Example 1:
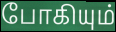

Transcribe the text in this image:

போகியும்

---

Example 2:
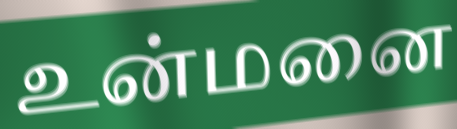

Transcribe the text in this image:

உன்மனை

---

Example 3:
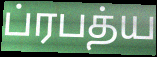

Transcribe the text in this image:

ப்ரபத்ய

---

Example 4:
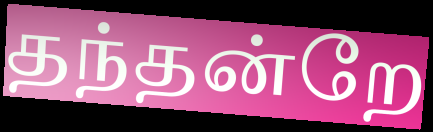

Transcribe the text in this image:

தந்தன்றே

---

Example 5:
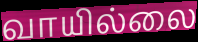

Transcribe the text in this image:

வாயில்லை